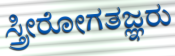
ಸ್ತ್ರೀರೋಗತಜ್ಞರು